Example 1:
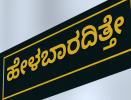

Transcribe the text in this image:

ಹೇಳಬಾರದಿತ್ತೇ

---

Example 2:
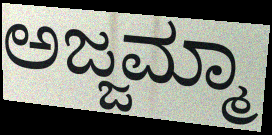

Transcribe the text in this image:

ಅಜ್ಜಮ್ಮಾ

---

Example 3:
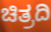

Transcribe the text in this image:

ಚಿತ್ರದಿ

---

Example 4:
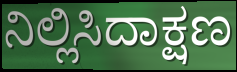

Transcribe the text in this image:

ನಿಲ್ಲಿಸಿದಾಕ್ಷಣ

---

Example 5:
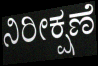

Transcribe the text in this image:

ನಿರೀಕ್ಷಣೆ